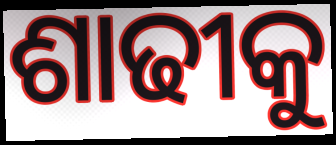
ଶାଢୀକୁ